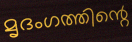
മൃദംഗത്തിന്റെ